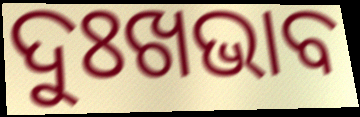
ଦୁଃଖଭାବ